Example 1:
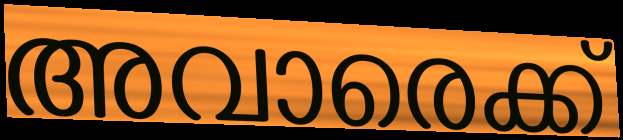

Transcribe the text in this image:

അവാരെക്ക്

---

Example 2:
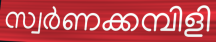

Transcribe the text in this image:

സ്വർണക്കമ്പിളി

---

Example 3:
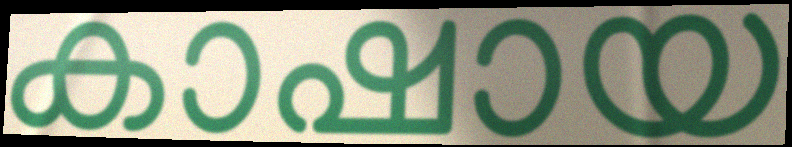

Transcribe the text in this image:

കാഷായ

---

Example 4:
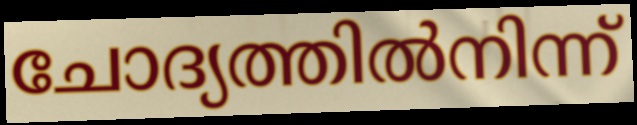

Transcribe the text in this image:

ചോദ്യത്തിൽനിന്ന്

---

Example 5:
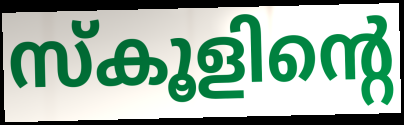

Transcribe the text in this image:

സ്കൂളിന്റെ